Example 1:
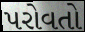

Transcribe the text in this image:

પરોવતો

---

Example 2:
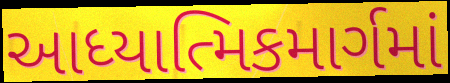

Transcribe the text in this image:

આધ્યાત્મિકમાર્ગમાં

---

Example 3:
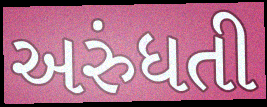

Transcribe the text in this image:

અરુંધતી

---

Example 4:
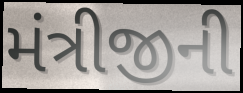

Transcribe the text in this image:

મંત્રીજીની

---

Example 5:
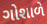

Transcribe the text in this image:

ગોશાળે